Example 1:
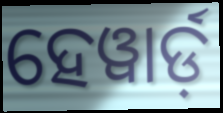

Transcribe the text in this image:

ହେୱାର୍ଡ଼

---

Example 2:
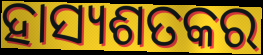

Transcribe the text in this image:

ହାସ୍ୟଶତକର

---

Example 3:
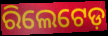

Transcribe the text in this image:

ରିଲେଟେଡ଼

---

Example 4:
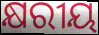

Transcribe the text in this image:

କ୍ଷରୀୟ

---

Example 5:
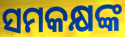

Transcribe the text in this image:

ସମକକ୍ଷଙ୍କ